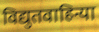
विद्युतवाहिन्या